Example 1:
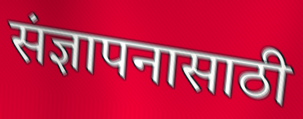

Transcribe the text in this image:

संज्ञापनासाठी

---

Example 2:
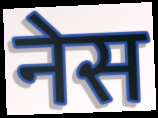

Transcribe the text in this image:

नेस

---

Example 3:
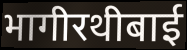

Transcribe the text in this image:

भागीरथीबाई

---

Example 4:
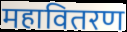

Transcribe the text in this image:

महावितरण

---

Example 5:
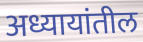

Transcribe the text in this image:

अध्यायांतील